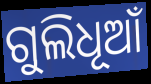
ଗୁଲିଧୂଆଁ